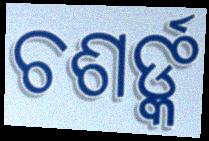
ଚଶର୍ଙ୍କ